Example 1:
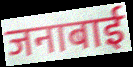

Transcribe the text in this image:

जनाबाई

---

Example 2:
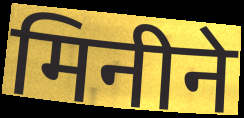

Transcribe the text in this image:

मिनीने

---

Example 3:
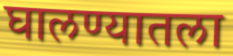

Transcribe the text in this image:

घालण्यातला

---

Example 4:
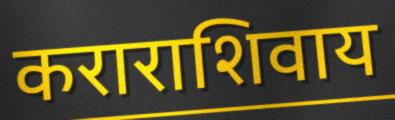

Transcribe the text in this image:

कराराशिवाय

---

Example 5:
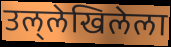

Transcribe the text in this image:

उल्लेखिलेला